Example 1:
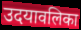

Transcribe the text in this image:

उदयावलिका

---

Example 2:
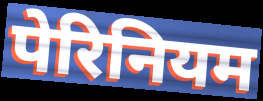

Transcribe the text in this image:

पेरिनियम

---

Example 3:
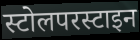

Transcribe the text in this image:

स्टोलपरस्टाइन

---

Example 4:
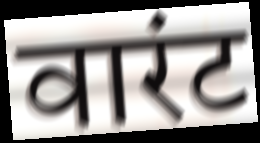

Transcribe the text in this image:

वारंट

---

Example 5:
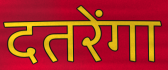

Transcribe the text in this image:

दतरेंगा